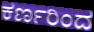
ಕರ್ಣರಿಂದ